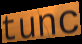
tunc